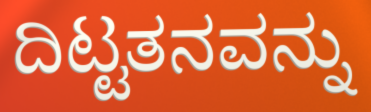
ದಿಟ್ಟತನವನ್ನು